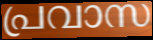
പ്രവാസ